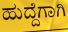
ಹುದ್ದೆಗಾಗಿ